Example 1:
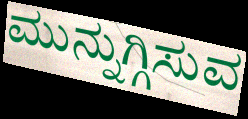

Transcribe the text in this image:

ಮುನ್ನುಗ್ಗಿಸುವ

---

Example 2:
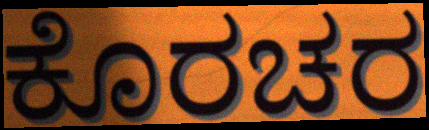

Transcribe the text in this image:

ಕೊರಚರ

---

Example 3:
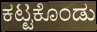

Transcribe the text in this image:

ಕಟ್ಟಕೊಂಡು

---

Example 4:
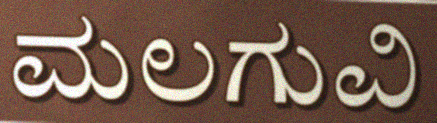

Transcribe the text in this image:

ಮಲಗುವಿ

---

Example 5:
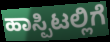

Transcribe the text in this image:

ಹಾಸ್ಪಿಟಲ್ಲಿಗೆ